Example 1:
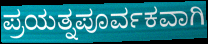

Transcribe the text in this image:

ಪ್ರಯತ್ನಪೂರ್ವಕವಾಗಿ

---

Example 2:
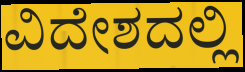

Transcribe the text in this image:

ವಿದೇಶದಲ್ಲಿ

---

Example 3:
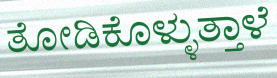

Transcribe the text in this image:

ತೋಡಿಕೊಳ್ಳುತ್ತಾಳೆ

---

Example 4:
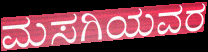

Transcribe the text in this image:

ಮಸಗಿಯವರ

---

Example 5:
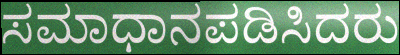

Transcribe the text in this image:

ಸಮಾಧಾನಪಡಿಸಿದರು